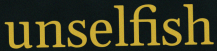
unselfish